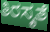
ತಿರಸ್ಕೃತೆ